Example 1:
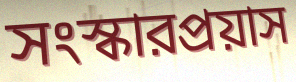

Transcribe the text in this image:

সংস্কারপ্রয়াস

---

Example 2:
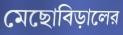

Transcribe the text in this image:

মেছোবিড়ালের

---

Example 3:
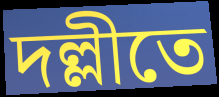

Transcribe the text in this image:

দল্লীতে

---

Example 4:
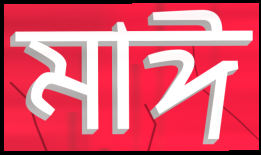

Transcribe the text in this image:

মাঈ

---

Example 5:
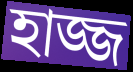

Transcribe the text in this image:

হাজ্জ